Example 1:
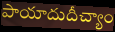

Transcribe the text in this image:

పాయాదుదీచ్యాం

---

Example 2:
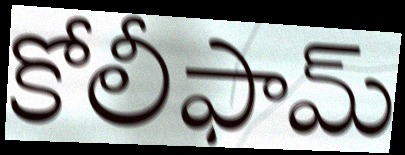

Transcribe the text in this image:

కోలీఫామ్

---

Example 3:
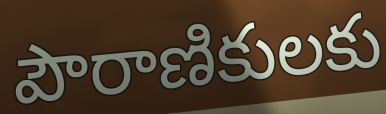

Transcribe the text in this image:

పౌరాణికులకు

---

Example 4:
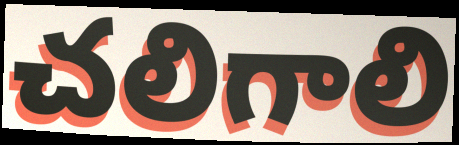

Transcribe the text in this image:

చలిగాలి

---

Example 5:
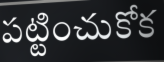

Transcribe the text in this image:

పట్టించుకోక